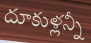
దూకుళ్లన్నీ